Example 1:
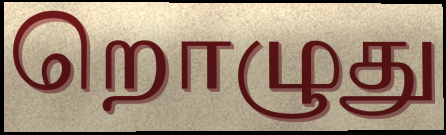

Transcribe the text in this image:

றொழுது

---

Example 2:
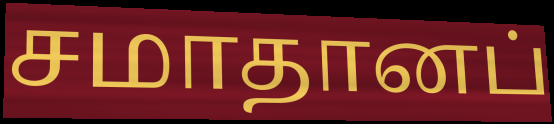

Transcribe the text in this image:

சமாதானப்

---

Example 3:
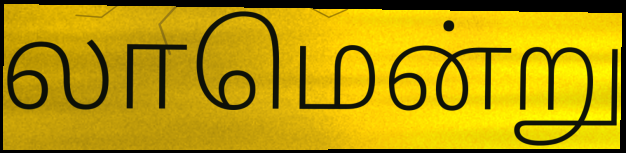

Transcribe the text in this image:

லாமென்று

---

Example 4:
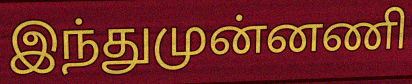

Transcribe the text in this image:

இந்துமுன்னணி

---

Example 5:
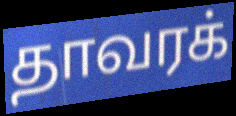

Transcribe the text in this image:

தாவரக்